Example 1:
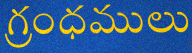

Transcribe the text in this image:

గ్రంధములు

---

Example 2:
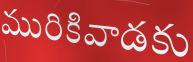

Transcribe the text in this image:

మురికివాడకు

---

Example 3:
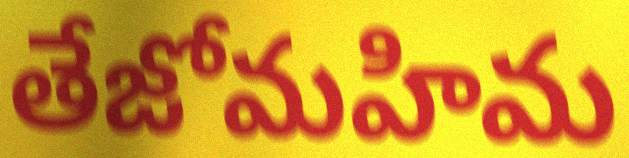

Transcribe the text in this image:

తేజోమహిమ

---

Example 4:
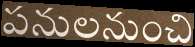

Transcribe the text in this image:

పనులనుంచి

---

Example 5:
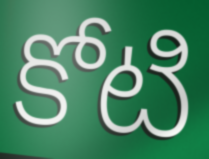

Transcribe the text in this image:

కోటి